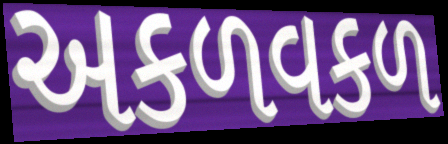
અકળવકળ